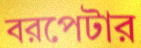
বরপেটার